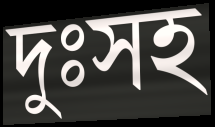
দুঃসহ